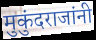
मुकुंदराजांनी